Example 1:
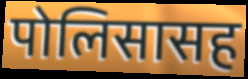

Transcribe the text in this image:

पोलिसासह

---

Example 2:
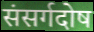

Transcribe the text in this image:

संसर्गदोष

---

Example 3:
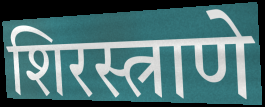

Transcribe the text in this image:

शिरस्त्राणे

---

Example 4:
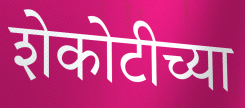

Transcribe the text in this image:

शेकोटीच्या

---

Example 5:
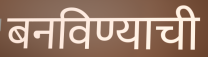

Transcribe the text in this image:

बनविण्याची